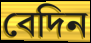
বেদিন